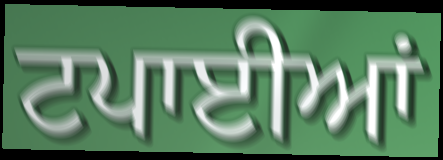
ਟਪਾਈਆਂ